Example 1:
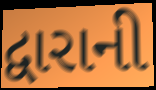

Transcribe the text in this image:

દ્વારાની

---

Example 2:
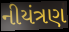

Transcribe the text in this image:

નીયંત્રણ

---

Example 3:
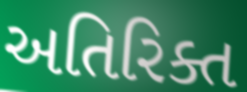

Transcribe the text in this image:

અતિરિક્ત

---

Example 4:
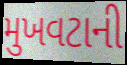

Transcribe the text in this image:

મુખવટાની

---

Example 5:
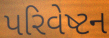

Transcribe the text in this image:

પરિવેષ્ટન